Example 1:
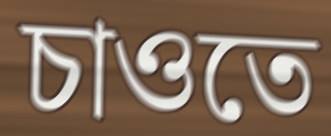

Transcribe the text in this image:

চাওতে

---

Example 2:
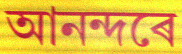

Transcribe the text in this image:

আনন্দৰে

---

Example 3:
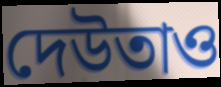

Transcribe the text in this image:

দেউতাও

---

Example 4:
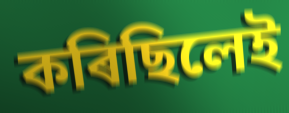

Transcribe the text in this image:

কৰিছিলেই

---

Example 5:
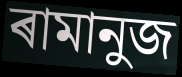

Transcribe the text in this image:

ৰামানুজ